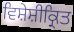
ਵਿਸ਼ੇਸ਼ੀਕ੍ਰਿਤ